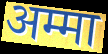
अम्मा